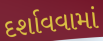
દર્શાવવામાં